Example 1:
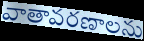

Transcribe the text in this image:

వాతావరణాలను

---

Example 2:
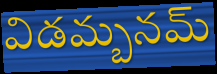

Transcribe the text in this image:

విడమ్బనమ్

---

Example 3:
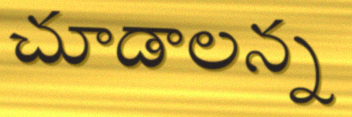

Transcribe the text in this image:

చూడాలన్న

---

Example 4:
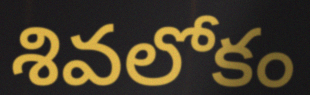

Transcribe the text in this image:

శివలోకం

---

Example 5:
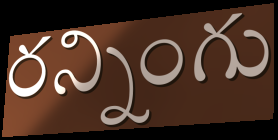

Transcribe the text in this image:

రన్నింగు